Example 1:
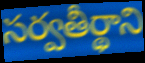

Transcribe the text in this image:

సర్వతీర్థాని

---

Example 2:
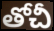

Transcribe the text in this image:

తోచీ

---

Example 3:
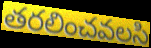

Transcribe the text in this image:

తరలించవలసి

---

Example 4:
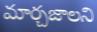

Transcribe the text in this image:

మార్చజాలని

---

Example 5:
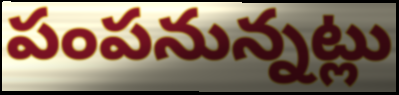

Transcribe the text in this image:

పంపనున్నట్లు